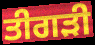
ਤੀਗੜੀ